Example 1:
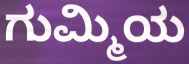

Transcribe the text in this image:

ಗುಮ್ಮಿಯ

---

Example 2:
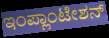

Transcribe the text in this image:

ಇಂಪ್ಲಾಂಟೇಶನ್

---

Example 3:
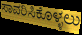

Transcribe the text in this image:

ಸಾವರಿಸಿಕೊಳ್ಳಲು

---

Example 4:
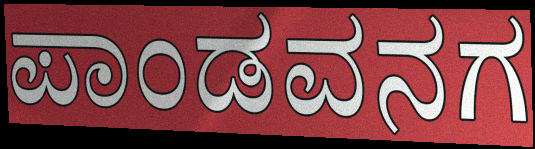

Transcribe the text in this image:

ಪಾಂಡವನಗ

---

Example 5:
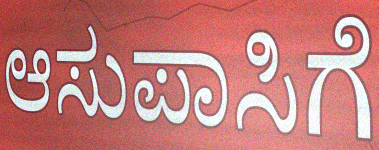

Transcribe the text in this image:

ಆಸುಪಾಸಿಗೆ